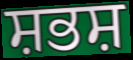
ਸ਼ਭਸ਼